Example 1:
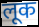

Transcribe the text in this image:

लूक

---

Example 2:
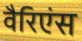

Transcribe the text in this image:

वैरिएंस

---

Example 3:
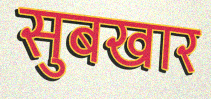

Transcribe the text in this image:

सुबखार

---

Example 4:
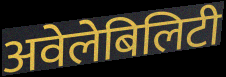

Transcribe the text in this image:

अवेलेबिलिटी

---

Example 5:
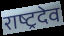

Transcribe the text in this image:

राष्ट्रदेव